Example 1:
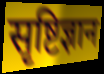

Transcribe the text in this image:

सृष्टिज्ञान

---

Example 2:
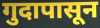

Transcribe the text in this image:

गुदापासून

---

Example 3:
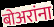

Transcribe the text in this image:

बोअरांना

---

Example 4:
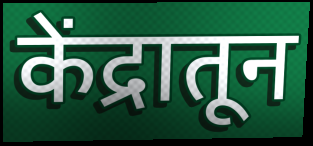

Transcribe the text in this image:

केंद्रातून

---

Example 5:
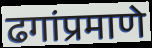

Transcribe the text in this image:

ढगांप्रमाणे